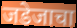
जडेजाचा